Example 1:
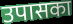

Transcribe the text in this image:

उपासका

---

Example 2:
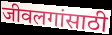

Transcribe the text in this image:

जीवलगांसाठी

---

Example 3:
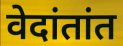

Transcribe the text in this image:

वेदांतांत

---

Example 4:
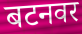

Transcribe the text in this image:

बटनवर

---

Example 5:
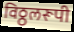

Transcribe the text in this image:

विठ्ठलरूपी